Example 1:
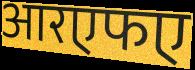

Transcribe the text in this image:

आरएफए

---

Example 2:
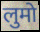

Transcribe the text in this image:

लुमो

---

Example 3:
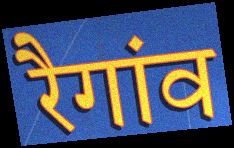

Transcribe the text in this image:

रैगांव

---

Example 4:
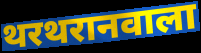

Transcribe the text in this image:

थरथरानवाला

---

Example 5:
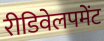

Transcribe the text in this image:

रीडिवेलपमेंट